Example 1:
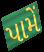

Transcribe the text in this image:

પામેં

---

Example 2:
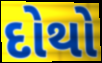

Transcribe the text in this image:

દોથો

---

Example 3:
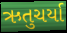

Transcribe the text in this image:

ઋતુચર્યા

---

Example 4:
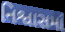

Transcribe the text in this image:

નિશ્વાસમાં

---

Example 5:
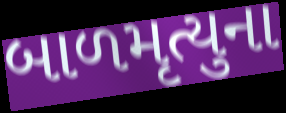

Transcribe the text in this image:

બાળમૃત્યુના